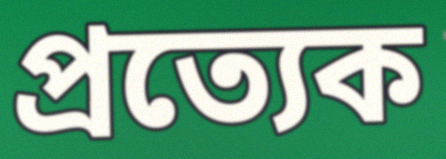
প্ৰত্যেক